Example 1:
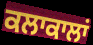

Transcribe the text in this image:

ਕਲਾਕਾਲਾਂ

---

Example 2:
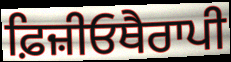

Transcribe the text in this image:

ਫ਼ਿਜ਼ੀਓਥੈਰਾਪੀ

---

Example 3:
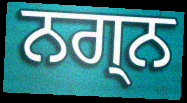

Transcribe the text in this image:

ਨਗ੍ਨ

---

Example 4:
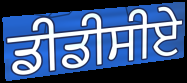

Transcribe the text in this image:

ਡੀਡੀਸੀਏ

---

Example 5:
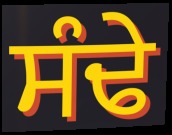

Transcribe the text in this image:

ਸੰਢੇ